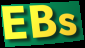
EBs